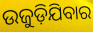
ଉଜୁଡ଼ିଯିବାର